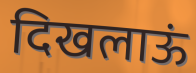
दिखलाऊं